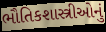
ભૌતિકશાસ્ત્રીઓનું